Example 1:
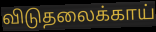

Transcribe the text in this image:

விடுதலைக்காய்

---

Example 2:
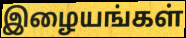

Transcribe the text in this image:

இழையங்கள்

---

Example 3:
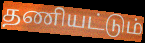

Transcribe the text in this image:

தணியட்டும்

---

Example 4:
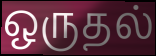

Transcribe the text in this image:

ஒருதல்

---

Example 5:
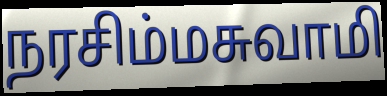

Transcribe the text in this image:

நரசிம்மசுவாமி